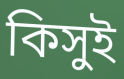
কিসুই